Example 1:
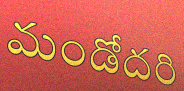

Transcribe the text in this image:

మండోదరి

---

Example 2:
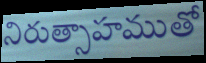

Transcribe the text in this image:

నిరుత్సాహముతో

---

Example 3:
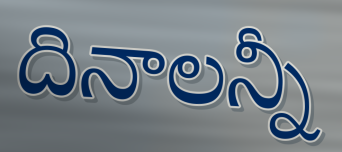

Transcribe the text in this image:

దినాలన్నీ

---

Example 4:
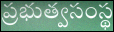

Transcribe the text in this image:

ప్రభుత్వసంస్థ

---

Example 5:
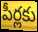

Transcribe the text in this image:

పీర్లకు